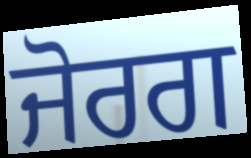
ਜੋਰਗ